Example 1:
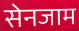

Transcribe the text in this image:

सेनजाम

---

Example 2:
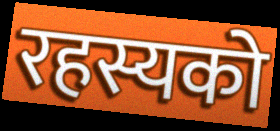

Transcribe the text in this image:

रहस्यको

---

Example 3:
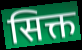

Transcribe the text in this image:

सिक्त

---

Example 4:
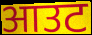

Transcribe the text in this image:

आउट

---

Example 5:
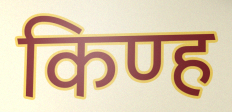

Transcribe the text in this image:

किण्ह